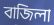
বাজিলা